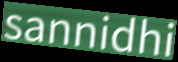
sannidhi